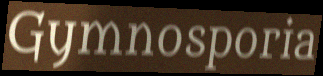
Gymnosporia